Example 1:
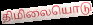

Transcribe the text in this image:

திமிலையொடு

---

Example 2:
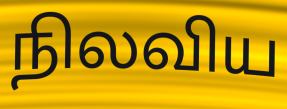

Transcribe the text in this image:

நிலவிய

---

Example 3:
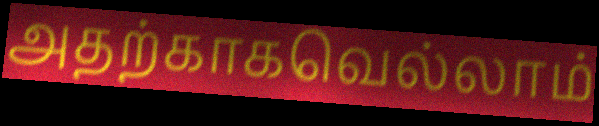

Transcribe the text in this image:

அதற்காகவெல்லாம்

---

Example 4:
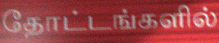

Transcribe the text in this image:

தோட்டங்களில்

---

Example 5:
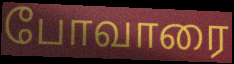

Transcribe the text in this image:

போவாரை